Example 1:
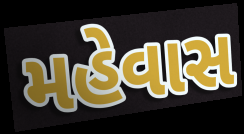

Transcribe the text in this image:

મહેવાસ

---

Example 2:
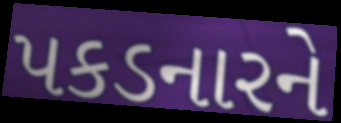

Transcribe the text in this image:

પકડનારને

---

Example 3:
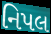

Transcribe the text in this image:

નિપલ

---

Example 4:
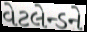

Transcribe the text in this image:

વેટલેન્ડને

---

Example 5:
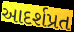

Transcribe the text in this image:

આદર્શપ્રત